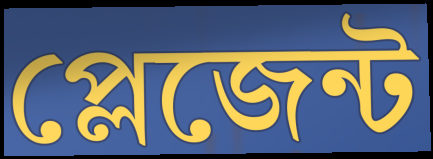
প্লেজেন্ট